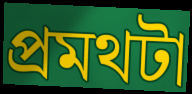
প্রমথটা